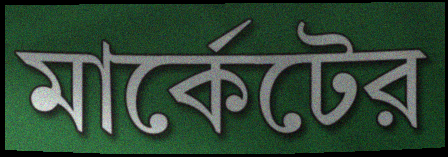
মার্কেটের